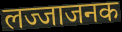
लज्जाजनक